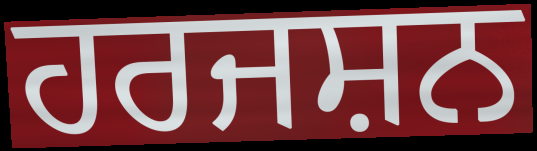
ਹਰਜਸ਼ਨ